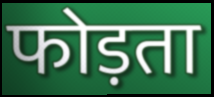
फोड़ता